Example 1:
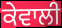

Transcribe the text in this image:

ਕੇਵਾਲੀ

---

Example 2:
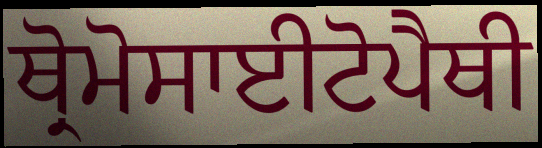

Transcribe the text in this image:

ਥ੍ਰੋਮੋਸਾਈਟੋਪੈਥੀ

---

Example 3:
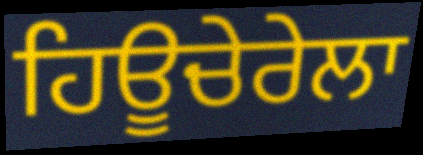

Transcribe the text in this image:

ਹਿਊਚੇਰੇਲਾ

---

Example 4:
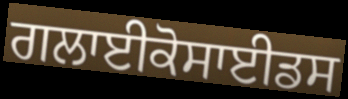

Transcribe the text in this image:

ਗਲਾਈਕੋਸਾਈਡਸ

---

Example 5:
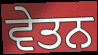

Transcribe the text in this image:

ਵੇਤਨ